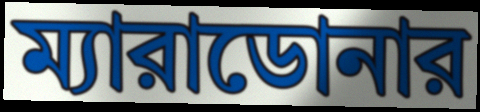
ম্যারাডোনার